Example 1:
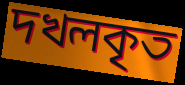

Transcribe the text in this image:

দখলকৃত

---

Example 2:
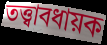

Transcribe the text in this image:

তত্ত্বাবধায়ক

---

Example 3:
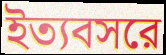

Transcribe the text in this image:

ইত্যবসরে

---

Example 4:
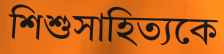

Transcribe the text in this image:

শিশুসাহিত্যকে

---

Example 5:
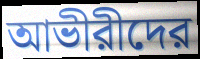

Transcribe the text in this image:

আভীরীদের